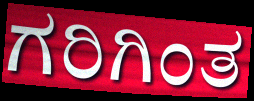
ಗರಿಗಿಂತ